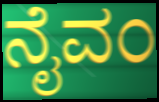
ನೈವಂ